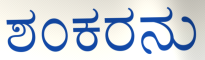
ಶಂಕರನು